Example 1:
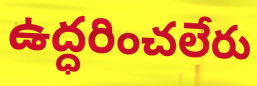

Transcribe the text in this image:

ఉద్ధరించలేరు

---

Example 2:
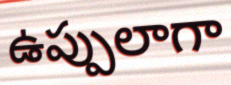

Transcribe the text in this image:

ఉప్పులాగా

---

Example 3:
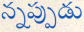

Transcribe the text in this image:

న్నప్పుడు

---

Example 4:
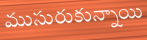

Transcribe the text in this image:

ముసురుకున్నాయి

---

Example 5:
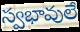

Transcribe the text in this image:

స్వభావులే